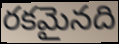
రకమైనది